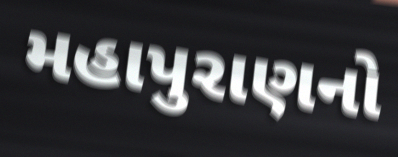
મહાપુરાણનો